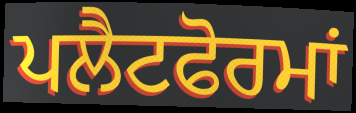
ਪਲੈਟਫੋਰਮਾਂ